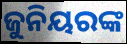
ଜୁନିୟରଙ୍କ